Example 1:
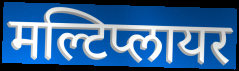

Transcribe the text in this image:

मल्टिप्लायर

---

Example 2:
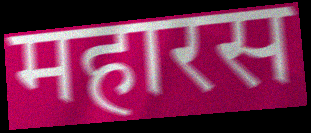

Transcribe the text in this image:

महारस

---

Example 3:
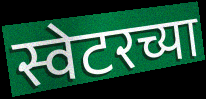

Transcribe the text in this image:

स्वेटरच्या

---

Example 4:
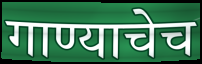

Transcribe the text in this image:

गाण्याचेच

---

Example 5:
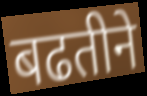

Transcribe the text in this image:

बढतीने